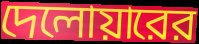
দেলোয়ারের